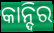
କାନ୍ଦିର